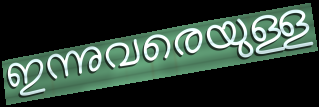
ഇന്നുവരെയുള്ള